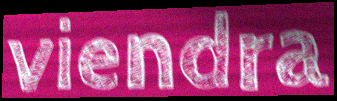
viendra